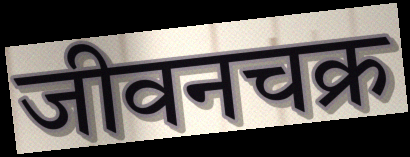
जीवनचक्र